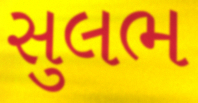
સુલભ